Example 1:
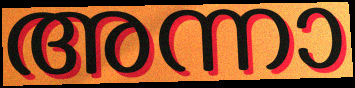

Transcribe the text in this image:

അന്നാ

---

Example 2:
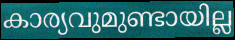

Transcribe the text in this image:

കാര്യവുമുണ്ടായില്ല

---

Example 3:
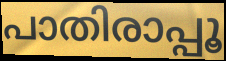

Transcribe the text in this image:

പാതിരാപ്പൂ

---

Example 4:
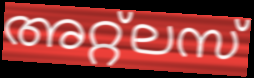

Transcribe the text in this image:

അറ്റ്ലസ്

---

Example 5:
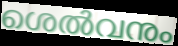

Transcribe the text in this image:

ശെൽവനും